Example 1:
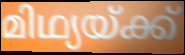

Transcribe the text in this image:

മിഥ്യയ്ക്ക്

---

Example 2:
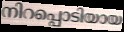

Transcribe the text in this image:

നിറപ്പൊടിയായ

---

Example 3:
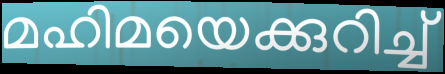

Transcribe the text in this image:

മഹിമയെക്കുറിച്ച്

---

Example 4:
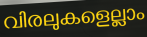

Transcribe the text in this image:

വിരലുകളെല്ലാം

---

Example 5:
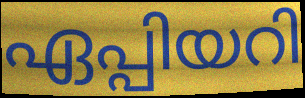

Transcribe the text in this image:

ഏപ്പിയറി